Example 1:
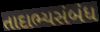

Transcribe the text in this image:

તાદાભ્યસંબંધ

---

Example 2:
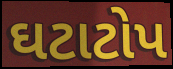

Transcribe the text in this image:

ઘટાટોપ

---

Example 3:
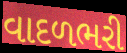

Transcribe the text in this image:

વાદળભરી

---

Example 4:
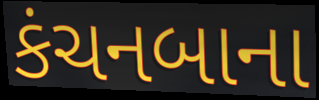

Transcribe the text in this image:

કંચનબાના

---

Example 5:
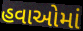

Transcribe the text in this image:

હવાઓમાં